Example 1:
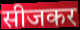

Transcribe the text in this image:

सीजकर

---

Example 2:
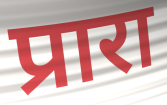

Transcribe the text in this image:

प्रारा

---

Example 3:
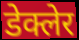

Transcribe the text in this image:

डेक्लेर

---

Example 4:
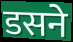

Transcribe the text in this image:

डसने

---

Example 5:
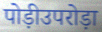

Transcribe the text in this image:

पोड़ीउपरोड़ा